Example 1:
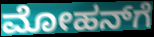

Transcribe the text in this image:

ಮೋಹನ್‌ಗೆ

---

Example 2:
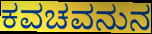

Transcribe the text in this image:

ಕವಚವನುನ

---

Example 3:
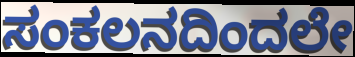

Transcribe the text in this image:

ಸಂಕಲನದಿಂದಲೇ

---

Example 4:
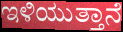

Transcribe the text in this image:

ಇಳಿಯುತ್ತಾನೆ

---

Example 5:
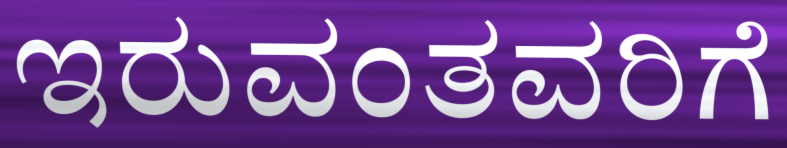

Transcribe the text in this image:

ಇರುವಂತವರಿಗೆ